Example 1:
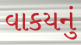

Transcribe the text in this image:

વાકયનું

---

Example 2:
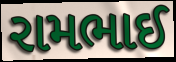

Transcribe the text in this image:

રામભાઈ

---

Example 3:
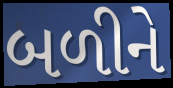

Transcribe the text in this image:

બળીને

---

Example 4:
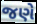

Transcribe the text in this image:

જણે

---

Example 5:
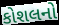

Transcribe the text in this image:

કોશલનો